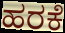
ಹರಕೆ